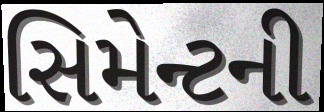
સિમેન્ટની